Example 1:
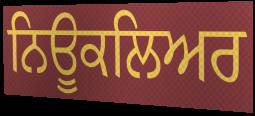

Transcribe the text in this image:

ਨਿਊਕਲਿਅਰ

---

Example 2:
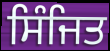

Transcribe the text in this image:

ਸਿੰਜਿਤ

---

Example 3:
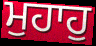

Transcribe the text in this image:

ਮੁਹਾਹੁ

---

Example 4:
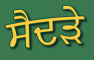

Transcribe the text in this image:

ਸੈਦੜੇ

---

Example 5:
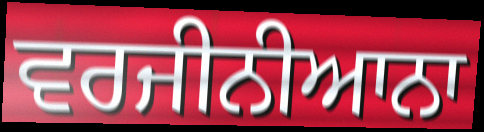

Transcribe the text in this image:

ਵਰਜੀਨੀਆਨਾ